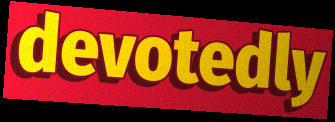
devotedly